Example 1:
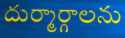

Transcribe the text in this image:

దుర్మార్గాలను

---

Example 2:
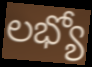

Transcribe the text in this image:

లభ్యో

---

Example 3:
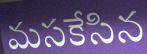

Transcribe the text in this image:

మసకేసిన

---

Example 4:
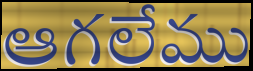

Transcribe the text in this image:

ఆగలేము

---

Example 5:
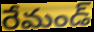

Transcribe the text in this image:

రేమండ్